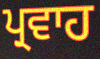
ਪ੍ਰਵਾਹ